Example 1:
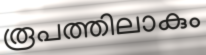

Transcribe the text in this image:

രൂപത്തിലാകും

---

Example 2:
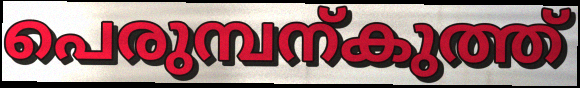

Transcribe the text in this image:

പെരുമ്പന്കുത്ത്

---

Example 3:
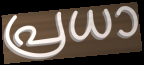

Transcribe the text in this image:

പ്രധാ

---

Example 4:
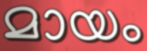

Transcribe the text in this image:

മായം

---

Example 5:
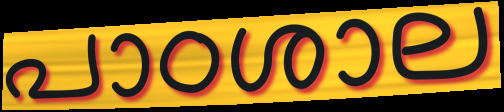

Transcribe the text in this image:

പാഠശാല